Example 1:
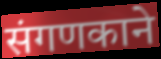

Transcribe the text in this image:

संगणकाने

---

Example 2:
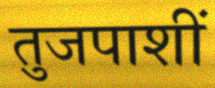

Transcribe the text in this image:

तुजपाशीं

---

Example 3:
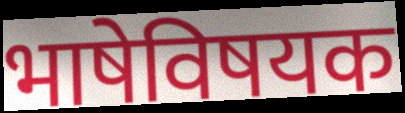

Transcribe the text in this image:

भाषेविषयक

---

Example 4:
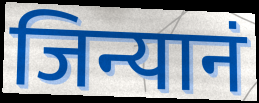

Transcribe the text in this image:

जिन्यानं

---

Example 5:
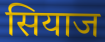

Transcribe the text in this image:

सियाज